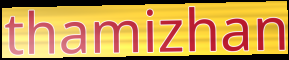
thamizhan